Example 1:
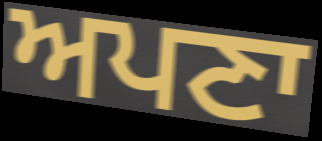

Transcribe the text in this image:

ਅਪਣਾ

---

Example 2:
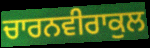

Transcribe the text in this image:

ਚਾਰਨਵੀਰਾਕੁਲ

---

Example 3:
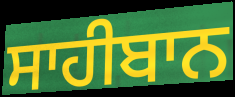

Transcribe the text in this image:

ਸਾਹੀਬਾਨ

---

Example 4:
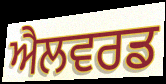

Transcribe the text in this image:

ਐਲਵਰਡ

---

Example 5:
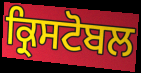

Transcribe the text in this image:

ਕ੍ਰਿਸਟੋਬਲ